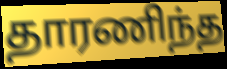
தாரணிந்த